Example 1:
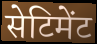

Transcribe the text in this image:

सेटिमेंट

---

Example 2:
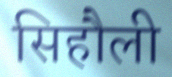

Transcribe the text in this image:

सिहौली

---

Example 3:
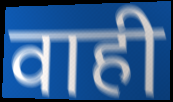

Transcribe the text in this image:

वाही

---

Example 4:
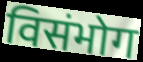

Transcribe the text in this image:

विसंभोग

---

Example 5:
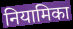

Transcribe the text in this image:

नियामिका